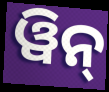
ୱିନ୍